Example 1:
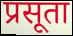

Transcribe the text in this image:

प्रसूता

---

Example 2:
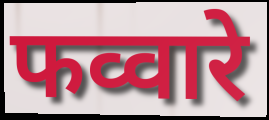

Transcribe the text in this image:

फव्वारे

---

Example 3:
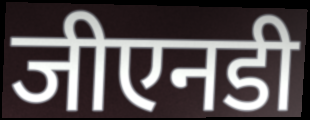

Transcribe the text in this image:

जीएनडी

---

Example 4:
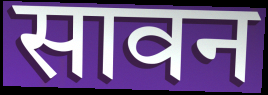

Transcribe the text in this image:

सावन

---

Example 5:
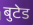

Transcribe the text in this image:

बुटेड